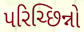
પરિચ્છિન્નો